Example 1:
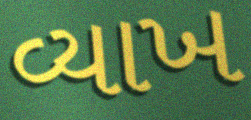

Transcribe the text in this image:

વ્યાખ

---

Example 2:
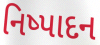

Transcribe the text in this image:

નિષ્પાદન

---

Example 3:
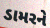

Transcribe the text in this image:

ડામરને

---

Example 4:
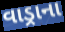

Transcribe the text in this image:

વાડ્રાના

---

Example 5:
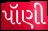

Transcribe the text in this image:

પૉણી